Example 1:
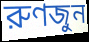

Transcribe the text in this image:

ৰুণজুন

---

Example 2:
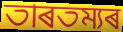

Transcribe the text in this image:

তাৰতম্যৰ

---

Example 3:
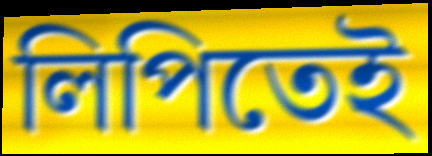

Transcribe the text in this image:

লিপিতেই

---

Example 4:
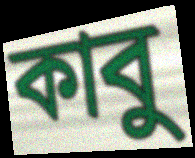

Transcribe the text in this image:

কাবু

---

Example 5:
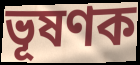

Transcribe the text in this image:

ভূষণক